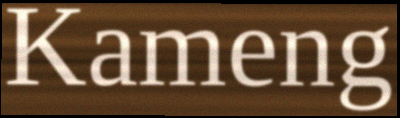
Kameng